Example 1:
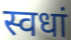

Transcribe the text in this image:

स्वधां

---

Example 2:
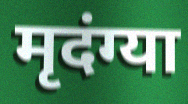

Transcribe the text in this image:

मृदंग्या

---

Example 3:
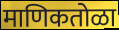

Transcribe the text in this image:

माणिकतोळा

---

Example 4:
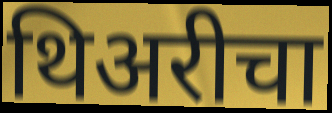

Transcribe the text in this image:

थिअरीचा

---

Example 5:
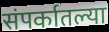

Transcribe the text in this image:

संपर्कातल्या